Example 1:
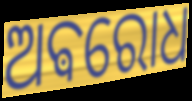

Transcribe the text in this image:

ଅଵରୋଧ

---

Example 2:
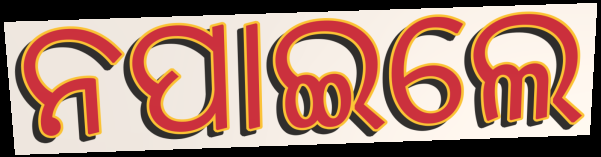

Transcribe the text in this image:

ନପାଇଲେ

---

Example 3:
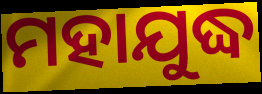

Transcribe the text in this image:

ମହାଯୁଦ୍ଧ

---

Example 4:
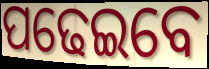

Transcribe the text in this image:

ପଢେଇବେ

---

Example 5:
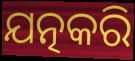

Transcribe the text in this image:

ଯତ୍ନକରି